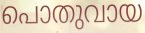
പൊതുവായ